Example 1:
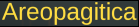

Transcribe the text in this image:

Areopagitica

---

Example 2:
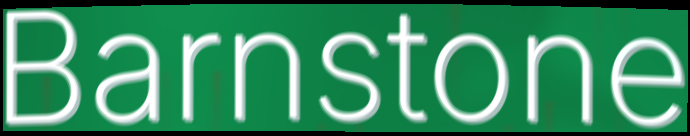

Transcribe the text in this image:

Barnstone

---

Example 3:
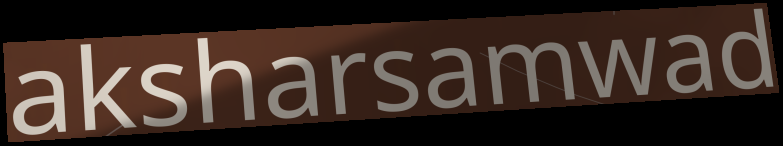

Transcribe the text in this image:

aksharsamwad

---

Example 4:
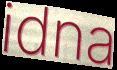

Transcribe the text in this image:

idna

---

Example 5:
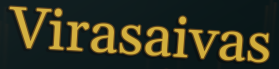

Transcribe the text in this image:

Virasaivas